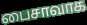
பைசாவாக